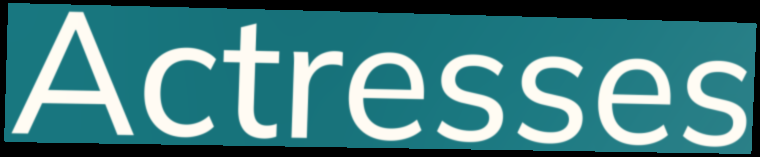
Actresses